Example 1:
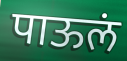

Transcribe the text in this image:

पाऊलं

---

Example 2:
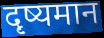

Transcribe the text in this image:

दृष्यमान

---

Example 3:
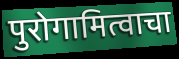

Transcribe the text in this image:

पुरोगामित्वाचा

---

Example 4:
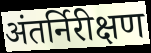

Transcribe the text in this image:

अंतर्निरीक्षण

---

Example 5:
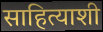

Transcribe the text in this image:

साहित्याशी